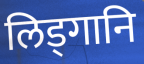
लिड्गानि